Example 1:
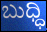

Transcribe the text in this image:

ಬುಧ್ಧಿ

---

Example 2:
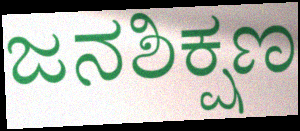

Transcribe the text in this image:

ಜನಶಿಕ್ಷಣ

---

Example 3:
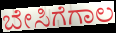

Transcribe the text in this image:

ಬೇಸಿಗೆಗಾಲ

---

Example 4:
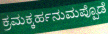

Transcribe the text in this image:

ಕ್ರಮಕ್ಕರ್ಹನುಮಪ್ಪೊಡೆ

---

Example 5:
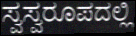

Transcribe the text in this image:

ಸ್ವಸ್ವರೂಪದಲ್ಲಿ